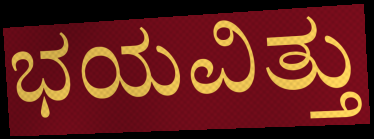
ಭಯವಿತ್ತು